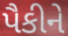
પૈકીને